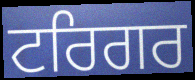
ਟਰਿਗਰ